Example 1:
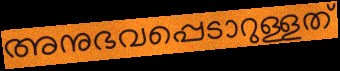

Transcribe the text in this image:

അനുഭവപ്പെടാറുള്ളത്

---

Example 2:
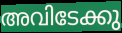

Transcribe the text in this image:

അവിടേക്കു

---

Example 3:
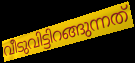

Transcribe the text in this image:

വീടുവിട്ടിറങ്ങുന്നത്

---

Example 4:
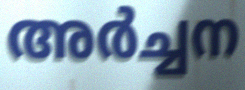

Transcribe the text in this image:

അർച്ചന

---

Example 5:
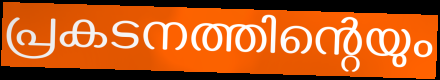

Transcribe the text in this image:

പ്രകടനത്തിന്റെയും